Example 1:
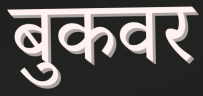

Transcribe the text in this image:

बुकवर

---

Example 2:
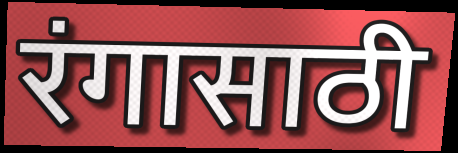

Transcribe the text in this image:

रंगासाठी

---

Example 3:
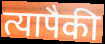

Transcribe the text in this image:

त्यापैकी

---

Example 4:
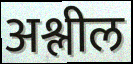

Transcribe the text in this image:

अश्लील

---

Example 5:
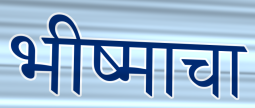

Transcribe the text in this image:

भीष्माचा